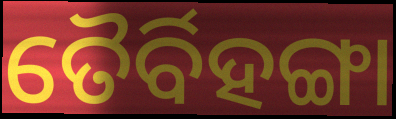
ତୈର୍ବିହଙ୍ଗା